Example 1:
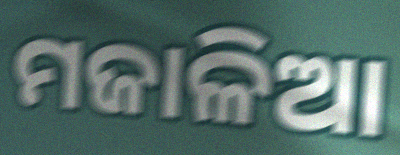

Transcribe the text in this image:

ମଜାଳିଆ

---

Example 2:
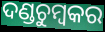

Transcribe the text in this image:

ଦଣ୍ଡଚୁମ୍ବକର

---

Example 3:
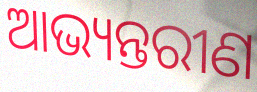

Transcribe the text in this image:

ଆଭ୍ୟନ୍ତରୀଣ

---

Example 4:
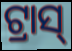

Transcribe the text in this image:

ଟ୍ରାସ୍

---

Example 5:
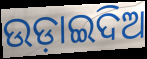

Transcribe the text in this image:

ଉଡ଼ାଇଦିଅ